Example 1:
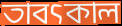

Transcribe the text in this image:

তাবৎকাল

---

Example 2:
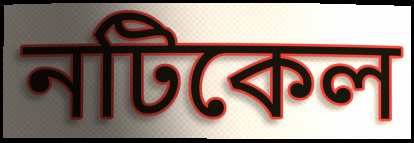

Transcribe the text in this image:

নটিকেল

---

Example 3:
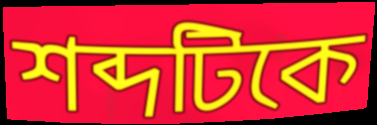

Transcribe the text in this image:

শব্দটিকে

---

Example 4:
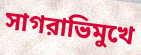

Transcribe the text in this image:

সাগরাভিমুখে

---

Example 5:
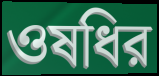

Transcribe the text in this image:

ওষধির